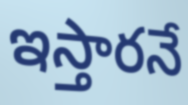
ఇస్తారనే